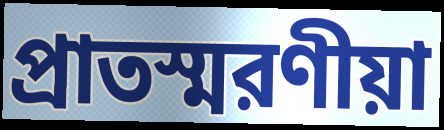
প্রাতস্মরণীয়া